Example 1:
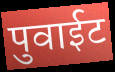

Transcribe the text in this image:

पुवाईट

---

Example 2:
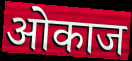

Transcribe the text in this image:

ओकाज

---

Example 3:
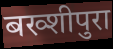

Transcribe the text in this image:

बख्शीपुरा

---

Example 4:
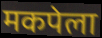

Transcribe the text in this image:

मकपेला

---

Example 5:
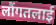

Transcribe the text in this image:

लौंगतलाई